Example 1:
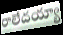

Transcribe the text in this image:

రాలేదయ్యా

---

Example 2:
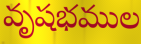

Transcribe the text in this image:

వృషభముల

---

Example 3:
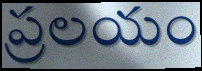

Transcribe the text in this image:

ప్రలయం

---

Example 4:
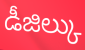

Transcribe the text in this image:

డీజిల్కు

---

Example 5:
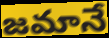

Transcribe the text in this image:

జమానే